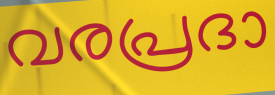
വരപ്രദാ